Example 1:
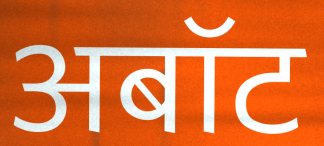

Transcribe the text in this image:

अबॉट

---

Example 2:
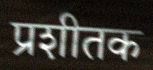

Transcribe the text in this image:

प्रशीतक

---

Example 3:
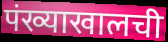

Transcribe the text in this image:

पंख्याखालची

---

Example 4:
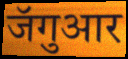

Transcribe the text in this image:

जॅगुआर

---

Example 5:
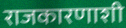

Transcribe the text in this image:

राजकारणाशी